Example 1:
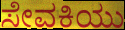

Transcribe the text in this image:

ಸೇವಕಿಯು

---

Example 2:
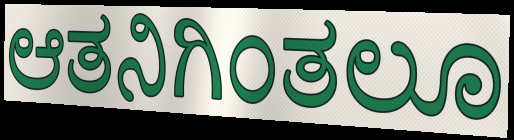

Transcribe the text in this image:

ಆತನಿಗಿಂತಲೂ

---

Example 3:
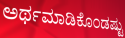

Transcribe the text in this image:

ಅರ್ಥಮಾಡಿಕೊಂಡಷ್ಟು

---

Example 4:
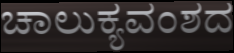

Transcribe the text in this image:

ಚಾಲುಕ್ಯವಂಶದ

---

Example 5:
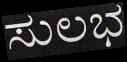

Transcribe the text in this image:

ಸುಲಭ